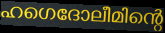
ഹഗെദോലീമിന്റെ